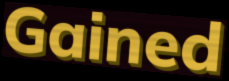
Gained